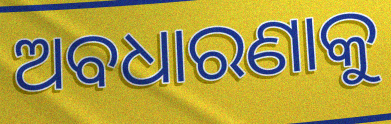
ଅବଧାରଣାକୁ